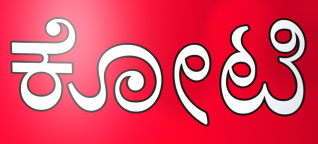
ಕೋಟಿ